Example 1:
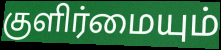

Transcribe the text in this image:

குளிர்மையும்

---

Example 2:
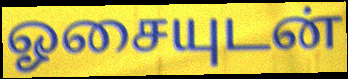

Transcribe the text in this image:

ஓசையுடன்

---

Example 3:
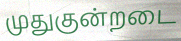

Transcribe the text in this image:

முதுகுன்றடை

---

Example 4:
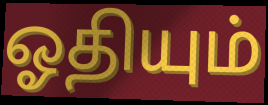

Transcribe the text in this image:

ஓதியும்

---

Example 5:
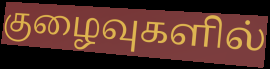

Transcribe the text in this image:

குழைவுகளில்